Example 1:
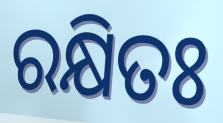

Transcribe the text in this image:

ରକ୍ଷିତଃ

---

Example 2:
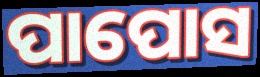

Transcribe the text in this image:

ପାପୋସ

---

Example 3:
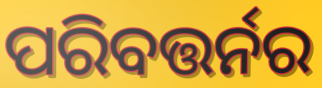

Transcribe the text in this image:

ପରିବତ୍ତର୍ନର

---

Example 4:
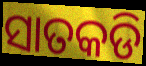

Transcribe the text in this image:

ସାତକଡି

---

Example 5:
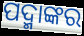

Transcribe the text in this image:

ପଦ୍ମାଙ୍କର